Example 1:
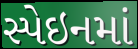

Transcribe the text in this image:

સ્પેઇનમાં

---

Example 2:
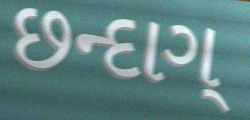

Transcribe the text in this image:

છન્દાગ્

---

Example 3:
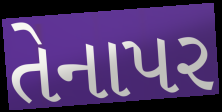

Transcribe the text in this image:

તેનાપર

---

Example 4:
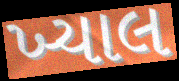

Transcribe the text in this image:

ખ્યાલ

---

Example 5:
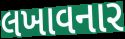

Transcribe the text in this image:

લખાવનાર